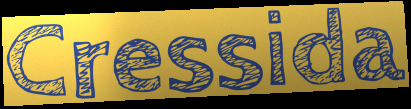
Cressida